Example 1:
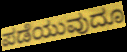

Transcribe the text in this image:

ಪಡೆಯುವುದೂ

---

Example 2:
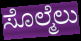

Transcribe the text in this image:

ಸೊಲ್ಮೆಲು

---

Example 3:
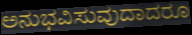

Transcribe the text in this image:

ಅನುಭವಿಸುವುದಾದರೂ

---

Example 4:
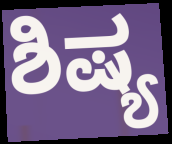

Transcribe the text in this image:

ಶಿಷ್ಯ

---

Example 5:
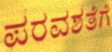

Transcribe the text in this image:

ಪರವಶತೆಗೆ